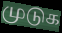
முடுக